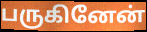
பருகினேன்